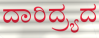
ದಾರಿದ್ರ್ಯದ